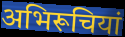
अभिरूचियां